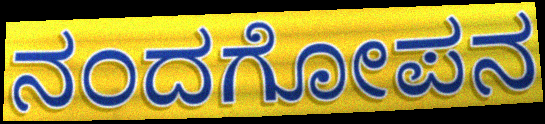
ನಂದಗೋಪನ